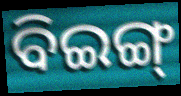
ବିଇଙ୍ଗ୍